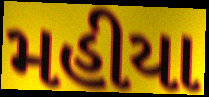
મહીયા